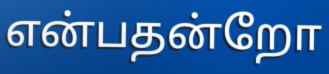
என்பதன்றோ